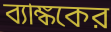
ব্যাঙ্ককের